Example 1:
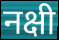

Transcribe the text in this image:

नक्षी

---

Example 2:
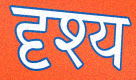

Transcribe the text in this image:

दृश्य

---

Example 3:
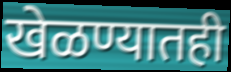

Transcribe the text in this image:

खेळण्यातही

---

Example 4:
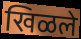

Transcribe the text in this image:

खिळले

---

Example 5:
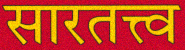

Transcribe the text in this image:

सारतत्त्व